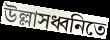
উল্লাসধ্বনিতে